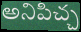
అనిపిచ్చ